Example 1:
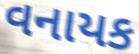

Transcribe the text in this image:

વનાયક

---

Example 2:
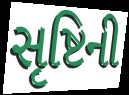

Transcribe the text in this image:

સૃષ્ટિની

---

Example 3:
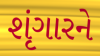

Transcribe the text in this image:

શૃંગારને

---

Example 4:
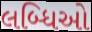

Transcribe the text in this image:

લબ્ધિઓ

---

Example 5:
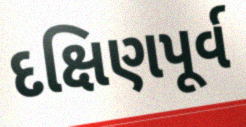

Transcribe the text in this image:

દક્ષિણપૂર્વ